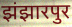
झंझारपुर